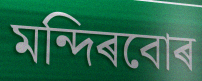
মন্দিৰবোৰ